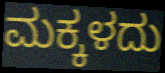
ಮಕ್ಕಳದು